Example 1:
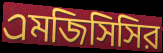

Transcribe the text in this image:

এমজিসিসির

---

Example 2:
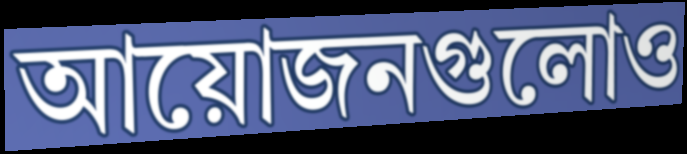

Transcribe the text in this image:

আয়োজনগুলোও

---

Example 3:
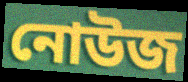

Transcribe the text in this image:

নোউজ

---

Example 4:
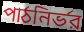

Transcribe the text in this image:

পাঠনির্ভর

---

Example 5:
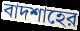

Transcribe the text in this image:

বাদশাহের